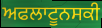
ਅਫਲਾਟੂਨਸਕੀ